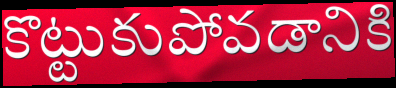
కొట్టుకుపోవడానికి